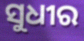
ସୁଧୀର